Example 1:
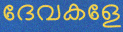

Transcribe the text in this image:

ദേവകളേ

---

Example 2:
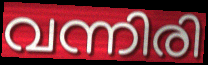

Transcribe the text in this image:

വന്നിരി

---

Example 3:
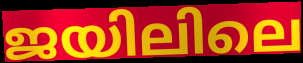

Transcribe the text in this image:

ജയിലിലെ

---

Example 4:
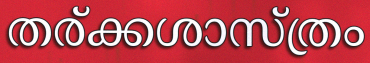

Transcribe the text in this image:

തര്ക്കശാസ്ത്രം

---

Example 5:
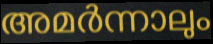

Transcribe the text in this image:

അമർന്നാലും